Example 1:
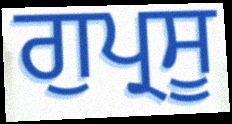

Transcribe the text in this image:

ਗੁਪ੍ਰਸੂ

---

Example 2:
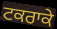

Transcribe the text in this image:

ਟਕਰਾਕੇ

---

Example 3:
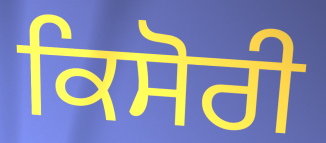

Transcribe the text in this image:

ਕਿਸੋਰੀ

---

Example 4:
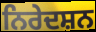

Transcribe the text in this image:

ਨਿਰੇਦਸ਼ਨ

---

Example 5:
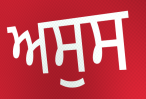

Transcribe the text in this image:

ਅਸੁਸ